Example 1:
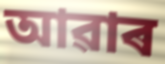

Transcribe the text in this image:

আৱাৰ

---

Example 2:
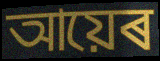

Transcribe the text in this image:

আয়েৰ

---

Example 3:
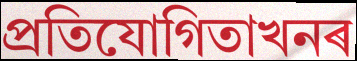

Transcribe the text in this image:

প্ৰতিযোগিতাখনৰ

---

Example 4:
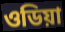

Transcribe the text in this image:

ওডিয়া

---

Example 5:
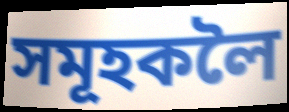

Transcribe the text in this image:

সমূহকলৈ